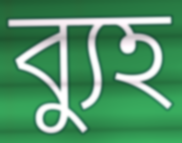
ব্যুহ